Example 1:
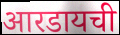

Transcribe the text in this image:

आरडायची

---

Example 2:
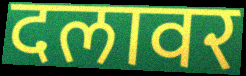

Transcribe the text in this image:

दलावर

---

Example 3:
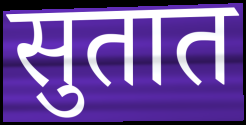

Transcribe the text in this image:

सुतात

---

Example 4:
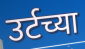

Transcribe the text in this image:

उर्टच्या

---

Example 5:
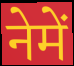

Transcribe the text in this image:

नेमें